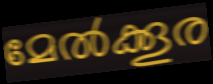
മേൽക്കൂര